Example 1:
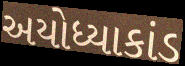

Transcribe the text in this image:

અયોધ્યાકાંડ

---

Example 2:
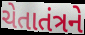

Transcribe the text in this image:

ચેતાતંત્રને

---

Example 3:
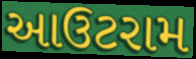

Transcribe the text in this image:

આઉટરામ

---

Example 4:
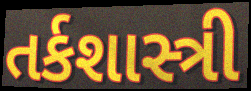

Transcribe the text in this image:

તર્કશાસ્ત્રી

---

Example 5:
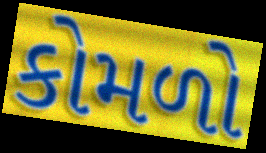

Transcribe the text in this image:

કોમળો